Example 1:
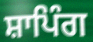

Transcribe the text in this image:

ਸ਼ਾਪਿੰਗ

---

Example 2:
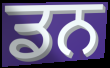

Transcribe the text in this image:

ਡਨ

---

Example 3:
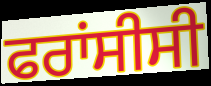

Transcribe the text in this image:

ਫਰਾਂਸੀਸੀ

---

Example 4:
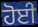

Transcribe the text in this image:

ਹੋਈ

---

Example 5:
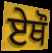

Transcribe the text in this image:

ਏਥੌ